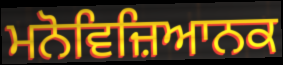
ਮਨੋਵਿਜ਼ਿਆਨਕ